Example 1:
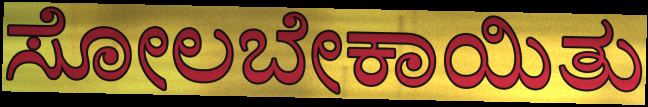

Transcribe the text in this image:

ಸೋಲಬೇಕಾಯಿತು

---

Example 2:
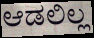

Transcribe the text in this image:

ಆಡಲಿಲ್ಲ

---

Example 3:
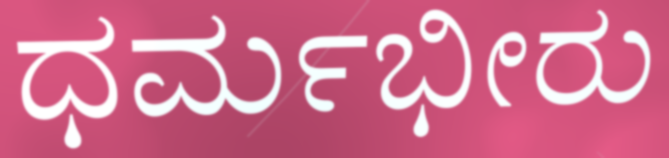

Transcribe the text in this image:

ಧರ್ಮಭೀರು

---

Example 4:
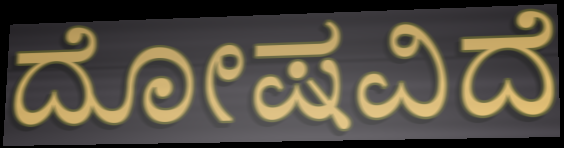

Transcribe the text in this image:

ದೋಷವಿದೆ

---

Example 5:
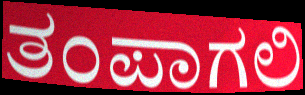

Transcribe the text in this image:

ತಂಪಾಗಲಿ